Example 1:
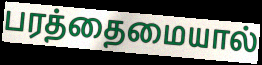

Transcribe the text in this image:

பரத்தைமையால்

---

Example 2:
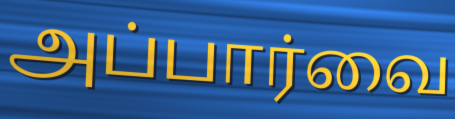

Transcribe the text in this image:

அப்பார்வை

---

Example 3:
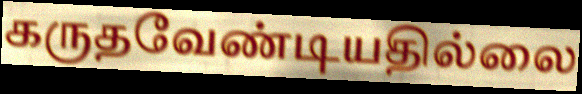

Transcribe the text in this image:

கருதவேண்டியதில்லை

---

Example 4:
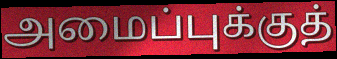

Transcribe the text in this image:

அமைப்புக்குத்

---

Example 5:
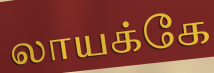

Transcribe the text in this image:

லாயக்கே